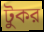
টুকর